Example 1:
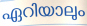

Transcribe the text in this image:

ഏറിയാലും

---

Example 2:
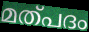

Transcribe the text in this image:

മത്പദം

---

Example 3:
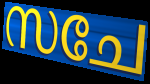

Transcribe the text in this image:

സചേ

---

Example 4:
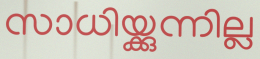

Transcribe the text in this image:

സാധിയ്ക്കുന്നില്ല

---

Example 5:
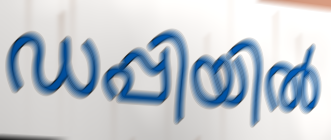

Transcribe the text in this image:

ഡപ്പിയിൽ